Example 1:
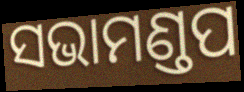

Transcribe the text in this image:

ସଭାମଣ୍ଡପ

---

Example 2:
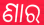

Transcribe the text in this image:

ଣାର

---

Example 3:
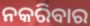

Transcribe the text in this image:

ନକରିବାର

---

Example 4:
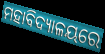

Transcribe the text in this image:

ମହାବିଦ୍ୟାଳୟରେ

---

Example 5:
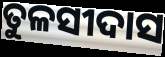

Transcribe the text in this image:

ତୁଳସୀଦାସ